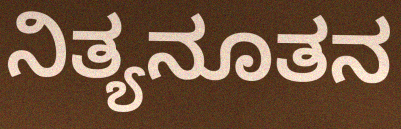
ನಿತ್ಯನೂತನ